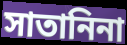
সাতানিনা